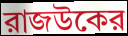
রাজউকের